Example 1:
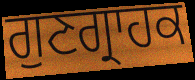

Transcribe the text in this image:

ਗੁਣਗ੍ਰਾਹਕ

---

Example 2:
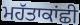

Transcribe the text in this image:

ਮਹੱਤਾਕਾਂਛੀ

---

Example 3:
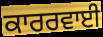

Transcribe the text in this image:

ਕਾਰਰਵਾਈ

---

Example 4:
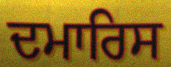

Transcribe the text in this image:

ਦਮਾਰਿਸ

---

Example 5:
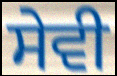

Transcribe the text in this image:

ਸੇਵੀ